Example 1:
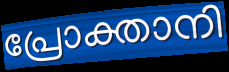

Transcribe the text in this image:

പ്രോക്താനി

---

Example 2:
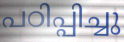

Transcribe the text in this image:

പഠിപ്പിച്ചു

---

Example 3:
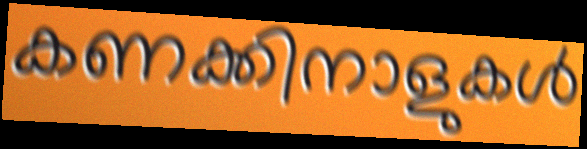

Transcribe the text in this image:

കണക്കിനാളുകൾ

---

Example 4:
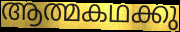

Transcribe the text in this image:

ആത്മകഥക്കു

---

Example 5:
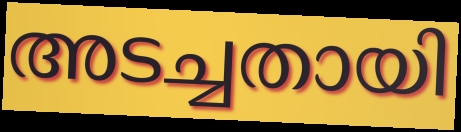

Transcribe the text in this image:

അടച്ചതായി